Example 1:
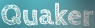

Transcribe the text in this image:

Quaker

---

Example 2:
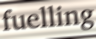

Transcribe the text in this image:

fuelling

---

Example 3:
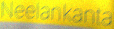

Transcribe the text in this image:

Neelankanta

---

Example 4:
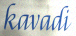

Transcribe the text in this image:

kavadi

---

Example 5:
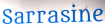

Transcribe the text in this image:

Sarrasine